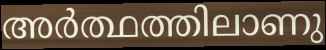
അർത്ഥത്തിലാണു